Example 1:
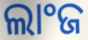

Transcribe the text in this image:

ଲାଂଜ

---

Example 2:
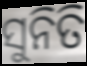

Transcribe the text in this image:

ସୁନିତି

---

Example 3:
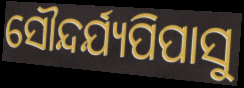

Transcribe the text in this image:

ସୌନ୍ଦର୍ଯ୍ୟପିପାସୁ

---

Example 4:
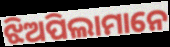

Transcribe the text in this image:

ଝିଅପିଲାମାନେ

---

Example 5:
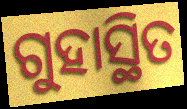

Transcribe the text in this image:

ଗୁହାସ୍ଥିତ